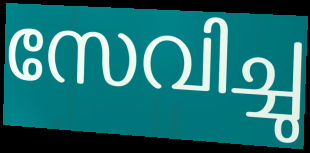
സേവിച്ചു